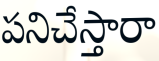
పనిచేస్తారా